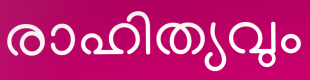
രാഹിത്യവും